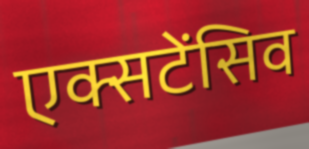
एक्सटेंसिव